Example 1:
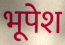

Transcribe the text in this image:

भूपेश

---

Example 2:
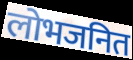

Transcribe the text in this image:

लोभजनित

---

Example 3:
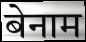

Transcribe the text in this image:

बेनाम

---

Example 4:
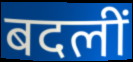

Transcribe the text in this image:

बदलीं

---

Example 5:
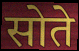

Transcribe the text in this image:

सोते